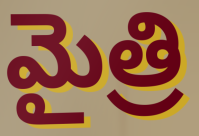
మైత్రి